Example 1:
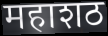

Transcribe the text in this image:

महाशठ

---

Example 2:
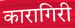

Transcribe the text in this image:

कारागिरी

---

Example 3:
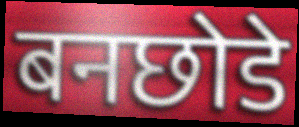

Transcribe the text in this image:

बनछोडे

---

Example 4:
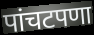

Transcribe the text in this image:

पांचटपणा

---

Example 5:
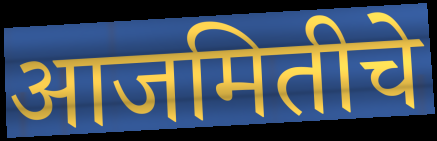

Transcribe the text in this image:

आजमितीचे